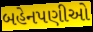
બહેનપણીઓ